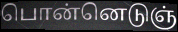
பொன்னெடுஞ்